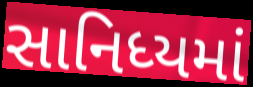
સાનિધ્યમાં